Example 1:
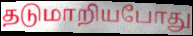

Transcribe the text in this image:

தடுமாறியபோது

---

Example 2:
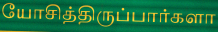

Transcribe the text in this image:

யோசித்திருப்பார்களா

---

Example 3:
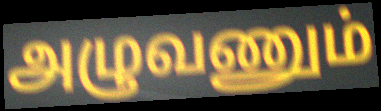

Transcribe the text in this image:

அழுவணும்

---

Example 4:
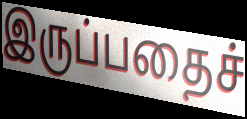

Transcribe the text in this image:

இருப்பதைச்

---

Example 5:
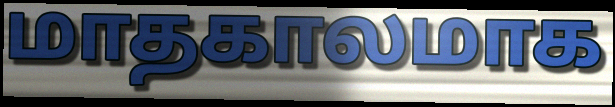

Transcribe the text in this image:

மாதகாலமாக